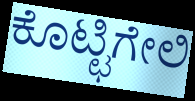
ಕೊಟ್ಟಿಗೇಲಿ